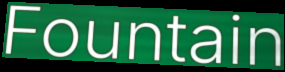
Fountain